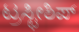
ಟ್ರಸ್ಟೀಶಿಪ್